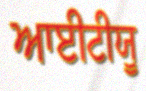
ਆਈਟੀਯੂ